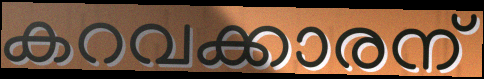
കറവക്കാരന്